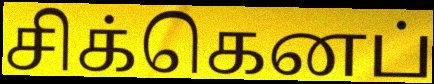
சிக்கெனப்